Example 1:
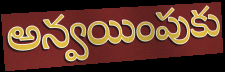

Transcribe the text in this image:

అన్వయింపుకు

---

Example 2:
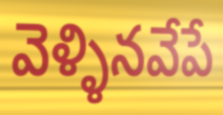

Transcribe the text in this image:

వెళ్ళినవేపే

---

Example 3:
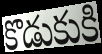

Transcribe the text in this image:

కొడుకుకి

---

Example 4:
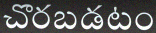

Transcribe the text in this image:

చొరబడటం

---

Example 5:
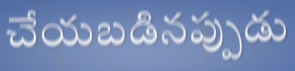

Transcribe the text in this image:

చేయబడినప్పుడు